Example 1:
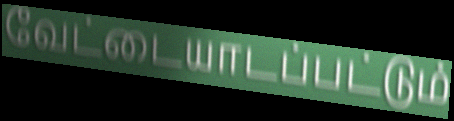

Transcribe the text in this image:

வேட்டையாடப்பட்டும்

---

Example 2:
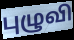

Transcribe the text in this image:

புழுவி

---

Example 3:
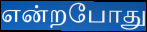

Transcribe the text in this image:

என்றபோது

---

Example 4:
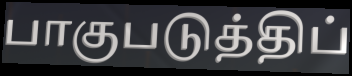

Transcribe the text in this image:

பாகுபடுத்திப்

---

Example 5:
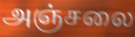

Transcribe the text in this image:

அஞ்சலை